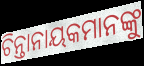
ଚିନ୍ତାନାୟକମାନଙ୍କୁ